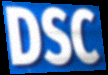
DSC